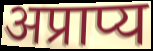
अप्राप्य